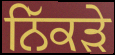
ਨਿੱਕੜੇ